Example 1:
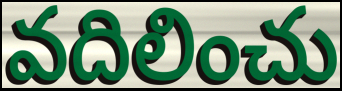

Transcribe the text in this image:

వదిలించు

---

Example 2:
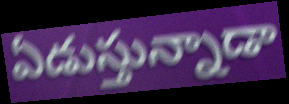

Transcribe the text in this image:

ఏడుస్తున్నాడా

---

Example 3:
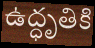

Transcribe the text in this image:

ఉద్ధృతికి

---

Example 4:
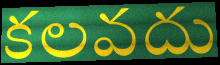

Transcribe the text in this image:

కలవదు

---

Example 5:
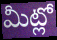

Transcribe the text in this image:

మీట్లో